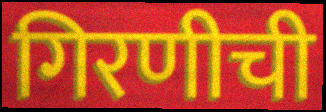
गिरणीची